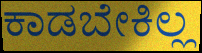
ಕಾಡಬೇಕಿಲ್ಲ